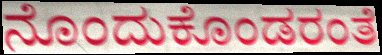
ನೊಂದುಕೊಂಡರಂತೆ